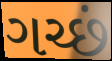
ગચ્છં